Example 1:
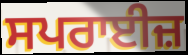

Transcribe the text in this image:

ਸਪਰਾਈਜ਼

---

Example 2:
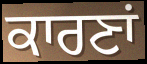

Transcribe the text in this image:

ਕਾਰਣਾਂ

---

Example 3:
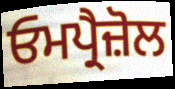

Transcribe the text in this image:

ਓਮਪ੍ਰੈਜ਼ੋਲ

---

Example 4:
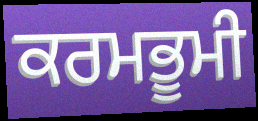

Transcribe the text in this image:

ਕਰਮਭੂਮੀ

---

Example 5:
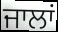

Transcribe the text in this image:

ਜਾਲਾਂ